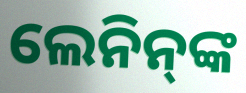
ଲେନିନ୍‌ଙ୍କ